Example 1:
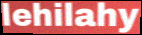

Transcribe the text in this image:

lehilahy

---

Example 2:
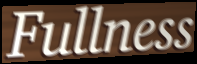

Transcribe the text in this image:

Fullness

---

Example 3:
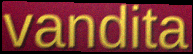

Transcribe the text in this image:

vandita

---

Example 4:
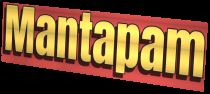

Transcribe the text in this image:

Mantapam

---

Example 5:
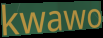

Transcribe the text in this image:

kwawo